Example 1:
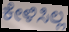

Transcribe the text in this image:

ಕೇಳಿಸಿಲ್ಲ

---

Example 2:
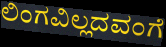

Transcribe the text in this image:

ಲಿಂಗವಿಲ್ಲದವಂಗೆ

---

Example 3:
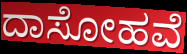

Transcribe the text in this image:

ದಾಸೋಹವೆ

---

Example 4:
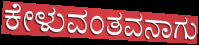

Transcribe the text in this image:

ಕೇಳುವಂತವನಾಗು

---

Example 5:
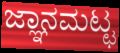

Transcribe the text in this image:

ಜ್ಞಾನಮಟ್ಟ